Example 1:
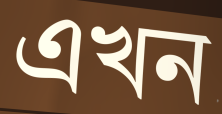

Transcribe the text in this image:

এখন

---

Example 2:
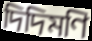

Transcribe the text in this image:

দিদিমণি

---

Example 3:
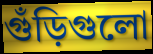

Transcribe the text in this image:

গুঁড়িগুলো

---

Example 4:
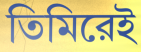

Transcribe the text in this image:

তিমিরেই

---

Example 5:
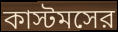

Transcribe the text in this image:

কাস্টমসের